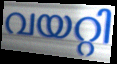
വയറ്റി